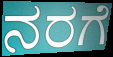
ನರಗೆ